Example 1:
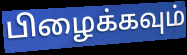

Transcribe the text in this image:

பிழைக்கவும்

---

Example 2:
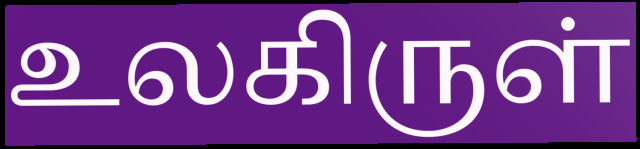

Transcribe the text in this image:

உலகிருள்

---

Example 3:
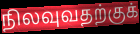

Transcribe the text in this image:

நிலவுவதற்குக்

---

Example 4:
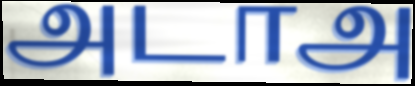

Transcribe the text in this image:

அடாஅ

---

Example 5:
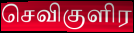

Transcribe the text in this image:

செவிகுளிர